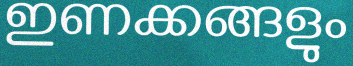
ഇണക്കങ്ങളും